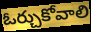
ఓర్చుకోవాలి